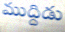
ముద్దిడు